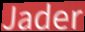
Jader